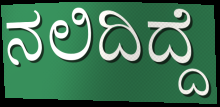
ನಲಿದಿದ್ದೆ